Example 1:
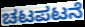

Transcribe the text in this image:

ಚಟಪಟನೆ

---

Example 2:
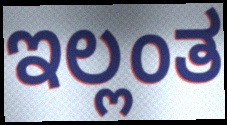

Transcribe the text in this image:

ಇಲ್ಲಂತ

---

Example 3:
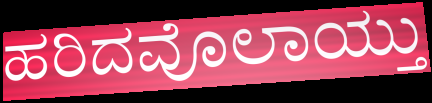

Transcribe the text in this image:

ಹರಿದವೊಲಾಯ್ತು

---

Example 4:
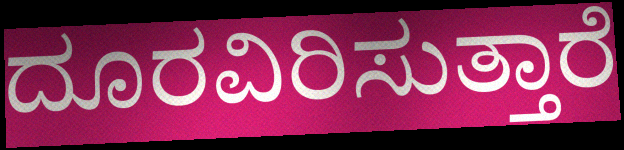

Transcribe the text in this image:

ದೂರವಿರಿಸುತ್ತಾರೆ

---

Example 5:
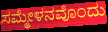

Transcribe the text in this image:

ಸಮ್ಮೇಳನವೊಂದು